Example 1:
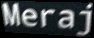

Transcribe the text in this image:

Meraj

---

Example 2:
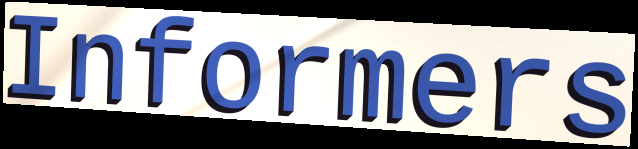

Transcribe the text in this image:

Informers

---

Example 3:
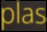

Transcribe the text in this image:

plas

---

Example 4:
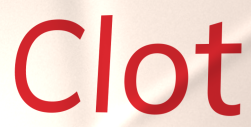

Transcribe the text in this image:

Clot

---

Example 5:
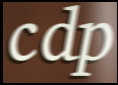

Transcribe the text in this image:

cdp